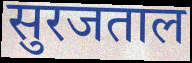
सुरजताल